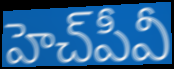
హెచ్‌పీవీ